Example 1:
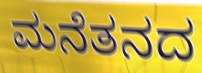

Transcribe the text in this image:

ಮನೆತನದ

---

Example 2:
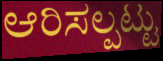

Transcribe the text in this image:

ಆರಿಸಲ್ಪಟ್ಟು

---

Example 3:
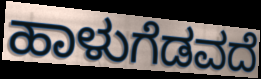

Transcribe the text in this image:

ಹಾಳುಗೆಡವದೆ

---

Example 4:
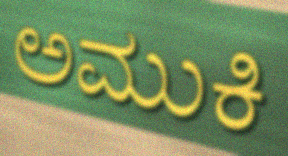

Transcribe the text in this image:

ಅಮುಕಿ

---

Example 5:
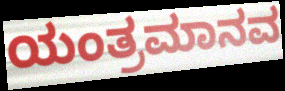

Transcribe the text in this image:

ಯಂತ್ರಮಾನವ